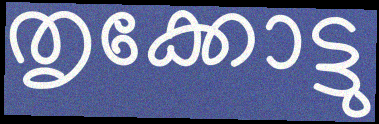
തൃക്കോട്ടു